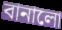
বানালো